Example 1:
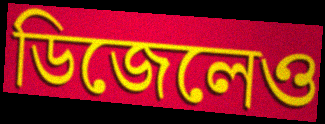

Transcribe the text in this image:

ডিজেলেও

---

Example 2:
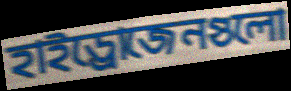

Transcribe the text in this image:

হাইড্রোজেনগুলো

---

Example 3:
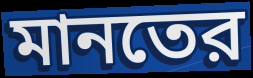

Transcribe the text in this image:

মানতের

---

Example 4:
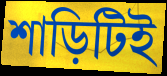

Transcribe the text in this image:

শাড়িটিই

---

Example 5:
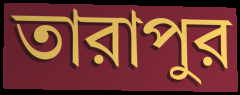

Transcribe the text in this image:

তারাপুর